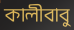
কালীবাবু